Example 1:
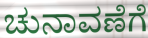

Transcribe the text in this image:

ಚುನಾವಣೆಗೆ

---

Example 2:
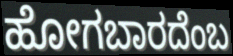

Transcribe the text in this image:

ಹೋಗಬಾರದೆಂಬ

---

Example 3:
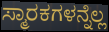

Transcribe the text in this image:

ಸ್ಮಾರಕಗಳನ್ನೆಲ್ಲ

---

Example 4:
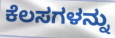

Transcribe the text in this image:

ಕೆಲಸಗಳನ್ನು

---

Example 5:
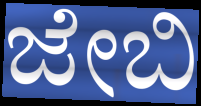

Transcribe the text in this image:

ಜೇಬಿ